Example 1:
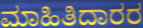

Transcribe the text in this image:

ಮಾಹಿತಿದಾರರ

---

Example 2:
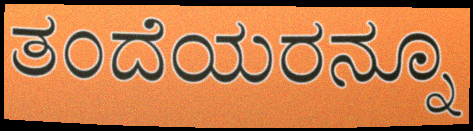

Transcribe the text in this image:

ತಂದೆಯರನ್ನೂ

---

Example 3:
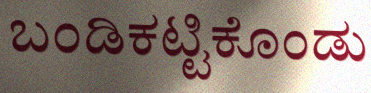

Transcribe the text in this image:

ಬಂಡಿಕಟ್ಟಿಕೊಂಡು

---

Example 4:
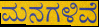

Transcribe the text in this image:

ಮನಗಳಿವೆ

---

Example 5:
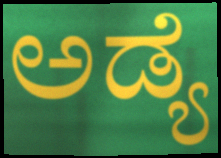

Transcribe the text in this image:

ಅಡ್ಯೆ